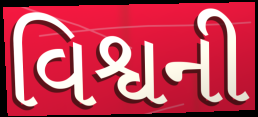
વિશ્વની